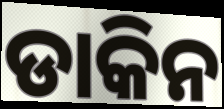
ଡାକିନ